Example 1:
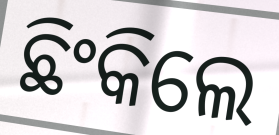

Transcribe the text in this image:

ଛିଂକିଲେ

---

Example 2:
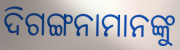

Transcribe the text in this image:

ଦିଗଙ୍ଗନାମାନଙ୍କୁ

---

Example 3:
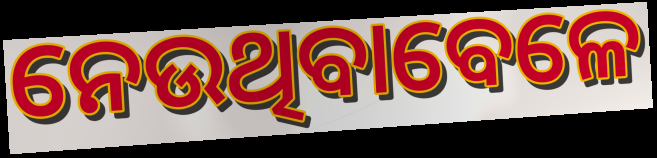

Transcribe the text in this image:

ନେଉଥିବାବେଳେ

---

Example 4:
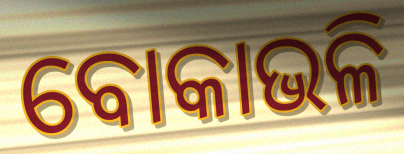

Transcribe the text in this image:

ବୋକାଭଳି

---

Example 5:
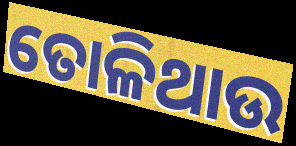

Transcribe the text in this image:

ତୋଳିଥାଉ